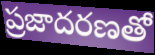
ప్రజాదరణతో